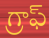
గ్రాఫ్